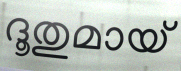
ദൂതുമായ്